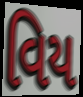
વિય